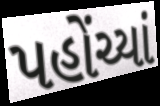
પહોંચ્યાં